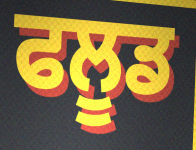
ਫਲੂਡ